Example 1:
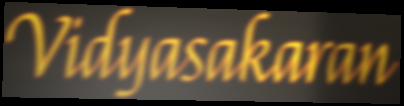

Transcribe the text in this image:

Vidyasakaran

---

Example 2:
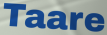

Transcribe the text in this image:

Taare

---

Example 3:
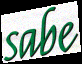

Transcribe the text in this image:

sabe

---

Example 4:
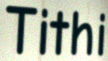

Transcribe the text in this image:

Tithi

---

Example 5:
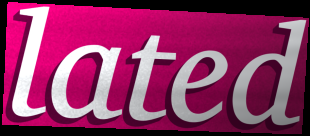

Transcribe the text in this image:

lated